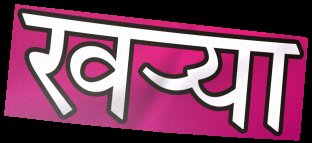
खऱ्या